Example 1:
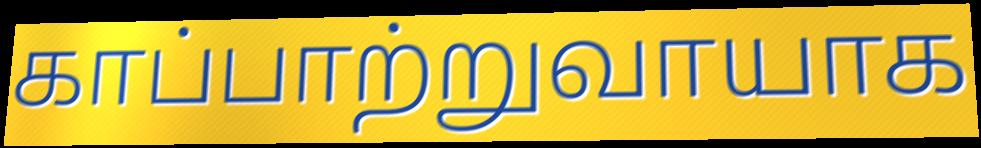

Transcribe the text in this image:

காப்பாற்றுவாயாக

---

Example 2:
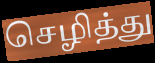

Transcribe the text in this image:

செழித்து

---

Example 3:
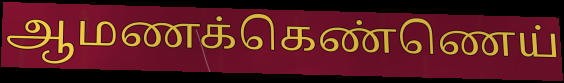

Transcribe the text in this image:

ஆமணக்கெண்ணெய்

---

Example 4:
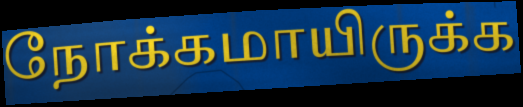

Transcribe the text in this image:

நோக்கமாயிருக்க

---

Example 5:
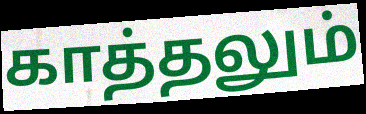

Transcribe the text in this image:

காத்தலும்